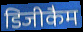
डिजीकैम